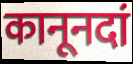
कानूनदां